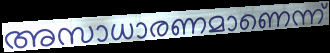
അസാധാരണമാണെന്ന്